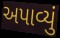
અપાવ્યું